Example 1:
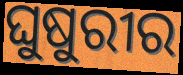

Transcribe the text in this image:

ଘୁଷୁରୀର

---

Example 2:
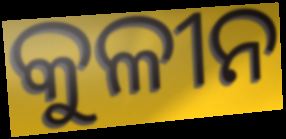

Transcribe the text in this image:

କୁଳୀନ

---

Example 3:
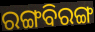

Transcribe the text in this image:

ରଙ୍ଗବିରଙ୍ଗ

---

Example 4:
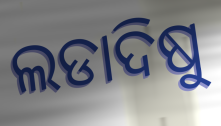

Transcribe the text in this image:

ଲଡାଦିଷୁ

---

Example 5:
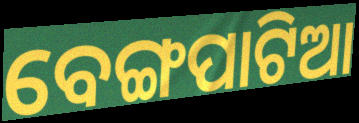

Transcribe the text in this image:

ବେଙ୍ଗପାଟିଆ